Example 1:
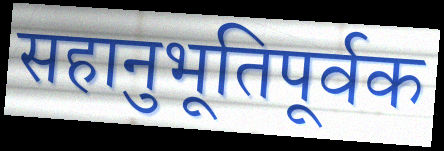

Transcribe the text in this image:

सहानुभूतिपूर्वक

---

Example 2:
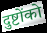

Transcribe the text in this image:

दुष्टोंको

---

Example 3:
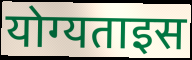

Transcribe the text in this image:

योग्यताइस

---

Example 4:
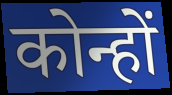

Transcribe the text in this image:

कोन्हों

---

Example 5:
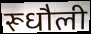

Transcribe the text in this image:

रूधौली